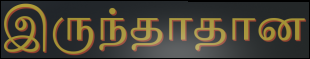
இருந்தாதான